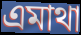
এমাথা